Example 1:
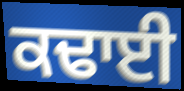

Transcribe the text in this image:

ਕਢਾਈ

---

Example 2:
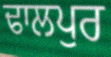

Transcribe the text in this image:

ਢਾਲਪੁਰ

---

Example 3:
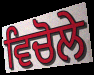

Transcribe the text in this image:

ਵਿਚੋਲੇ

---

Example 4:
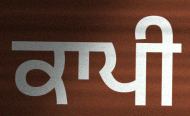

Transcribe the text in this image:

ਕਾਪੀ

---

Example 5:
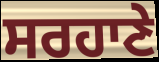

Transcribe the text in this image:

ਸਰਹਾਣੇ